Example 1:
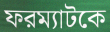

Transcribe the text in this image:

ফরম্যাটকে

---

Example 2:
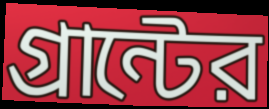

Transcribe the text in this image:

গ্রান্টের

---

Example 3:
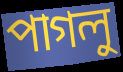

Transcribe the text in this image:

পাগলু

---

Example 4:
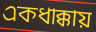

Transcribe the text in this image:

একধাক্কায়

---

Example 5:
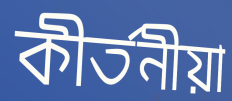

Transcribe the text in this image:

কীর্তনীয়া